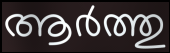
ആർത്തു